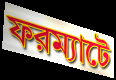
ফরম্যাটে